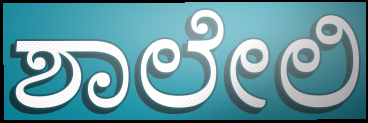
ಶಾಲೇಲಿ